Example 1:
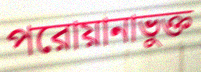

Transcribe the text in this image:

পরোয়ানাভুক্ত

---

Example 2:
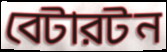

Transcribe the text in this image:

বেটারটন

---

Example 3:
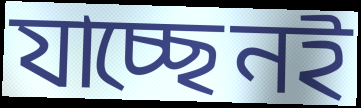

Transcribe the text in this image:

যাচ্ছেনই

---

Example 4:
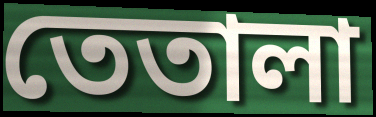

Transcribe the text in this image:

তেতালা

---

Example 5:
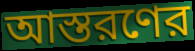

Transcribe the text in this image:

আস্তরণের